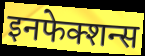
इनफेक्शन्स